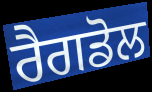
ਰੈਗਡੋਲ